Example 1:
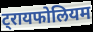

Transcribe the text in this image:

ट्रायफोलियम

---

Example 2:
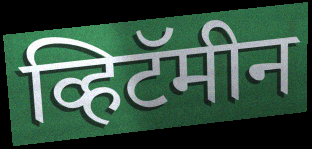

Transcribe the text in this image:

व्हिटॅमीन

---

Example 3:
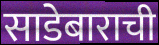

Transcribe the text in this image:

साडेबाराची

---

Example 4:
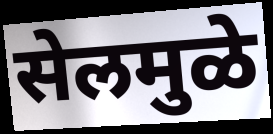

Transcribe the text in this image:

सेलमुळे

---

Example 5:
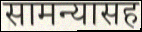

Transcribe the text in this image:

सामन्यासह